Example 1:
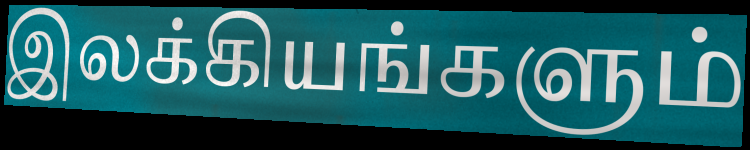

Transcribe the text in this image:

இலக்கியங்களும்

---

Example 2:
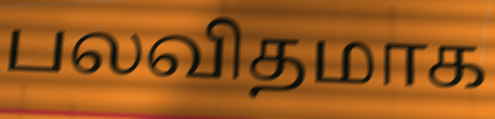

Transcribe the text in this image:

பலவிதமாக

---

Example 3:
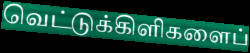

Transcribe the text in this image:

வெட்டுக்கிளிகளைப்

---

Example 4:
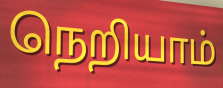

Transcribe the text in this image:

நெறியாம்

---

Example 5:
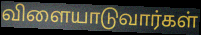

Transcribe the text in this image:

விளையாடுவார்கள்